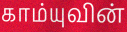
காம்யுவின்